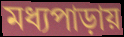
মধ্যপাড়ায়